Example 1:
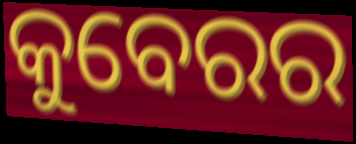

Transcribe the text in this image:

କୁବେରର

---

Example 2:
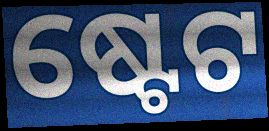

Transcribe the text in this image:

ଷ୍ଟେଟ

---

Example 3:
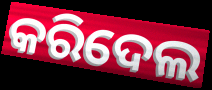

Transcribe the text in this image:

କରିଦେଲ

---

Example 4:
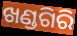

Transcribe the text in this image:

ଖଣ୍ଡଗିରି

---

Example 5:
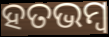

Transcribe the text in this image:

ହତଭମ୍ୱ